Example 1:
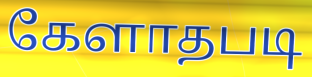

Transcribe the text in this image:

கேளாதபடி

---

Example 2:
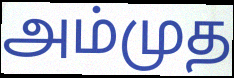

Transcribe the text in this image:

அம்முத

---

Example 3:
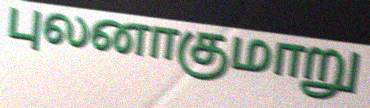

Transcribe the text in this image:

புலனாகுமாறு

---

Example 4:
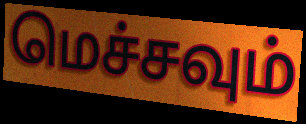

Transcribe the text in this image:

மெச்சவும்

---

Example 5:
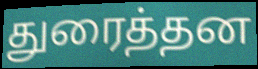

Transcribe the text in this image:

துரைத்தன